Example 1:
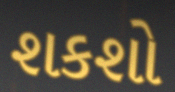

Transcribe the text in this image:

શકશો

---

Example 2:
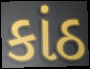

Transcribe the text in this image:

કાંઠ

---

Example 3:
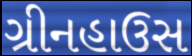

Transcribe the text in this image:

ગ્રીનહાઉસ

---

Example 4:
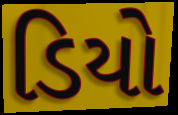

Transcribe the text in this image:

ડિયો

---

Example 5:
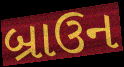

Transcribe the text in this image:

બ્રાઉન